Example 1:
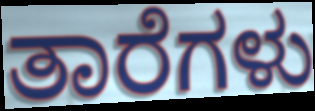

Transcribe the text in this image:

ತಾರೆಗಳು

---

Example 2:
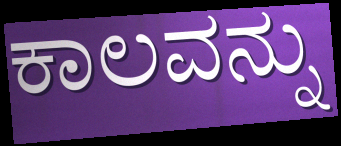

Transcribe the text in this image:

ಕಾಲವನ್ನು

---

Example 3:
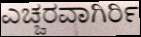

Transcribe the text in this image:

ಎಚ್ಚರವಾಗಿರ್ರಿ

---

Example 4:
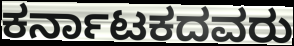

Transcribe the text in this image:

ಕರ್ನಾಟಕದವರು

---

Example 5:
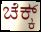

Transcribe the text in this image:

ಚೆಕ್ಕ್